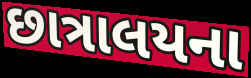
છાત્રાલયના